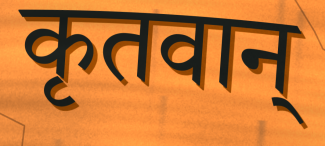
कृतवान्